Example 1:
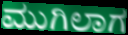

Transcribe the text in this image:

ಮುಗಿಲಾಗ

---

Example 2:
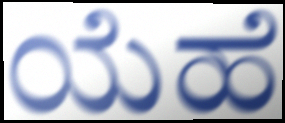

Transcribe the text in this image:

ಯೆಹೆ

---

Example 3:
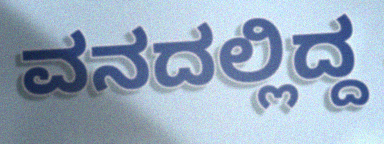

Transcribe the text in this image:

ವನದಲ್ಲಿದ್ದ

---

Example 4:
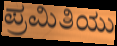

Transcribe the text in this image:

ಪ್ರಮಿತಿಯು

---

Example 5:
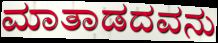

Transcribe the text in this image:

ಮಾತಾಡದವನು